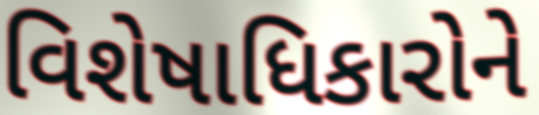
વિશેષાધિકારોને